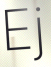
Ej